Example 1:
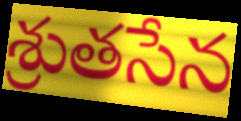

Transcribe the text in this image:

శ్రుతసేన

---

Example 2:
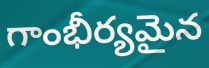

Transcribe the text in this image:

గాంభీర్యమైన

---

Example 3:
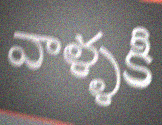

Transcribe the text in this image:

వాళ్ళకీ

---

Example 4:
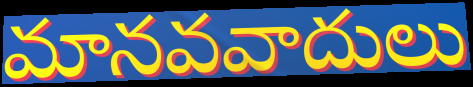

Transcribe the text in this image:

మానవవాదులు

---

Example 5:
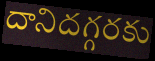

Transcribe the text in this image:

దానిదగ్గరకు